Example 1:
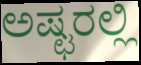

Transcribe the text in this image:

ಅಷ್ಟರಲ್ಲಿ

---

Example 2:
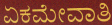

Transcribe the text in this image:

ಏಕಮೇವಾತಿ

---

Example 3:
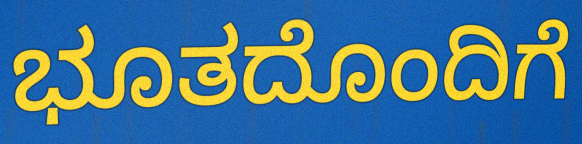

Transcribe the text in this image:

ಭೂತದೊಂದಿಗೆ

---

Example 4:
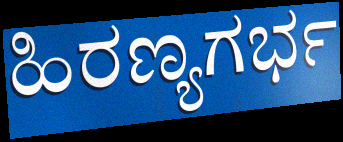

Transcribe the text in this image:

ಹಿರಣ್ಯಗರ್ಭ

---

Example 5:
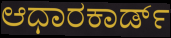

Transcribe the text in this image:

ಆಧಾರಕಾರ್ಡ್